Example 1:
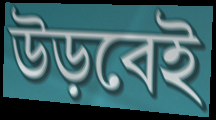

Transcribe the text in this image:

উড়বেই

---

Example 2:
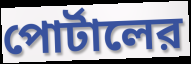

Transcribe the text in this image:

পোর্টালের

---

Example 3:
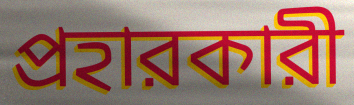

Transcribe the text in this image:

প্রহারকারী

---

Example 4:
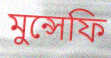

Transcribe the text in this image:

মুন্সেফি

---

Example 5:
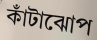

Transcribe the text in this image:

কাঁটাঝোপ